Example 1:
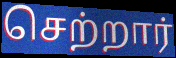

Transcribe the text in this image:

செற்றார்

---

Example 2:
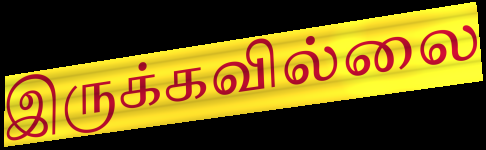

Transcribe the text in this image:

இருக்கவில்லை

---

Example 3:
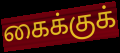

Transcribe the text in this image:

கைக்குக்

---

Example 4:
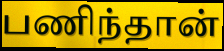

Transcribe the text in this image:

பணிந்தான்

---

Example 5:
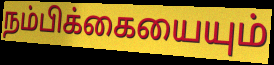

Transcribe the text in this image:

நம்பிக்கையையும்